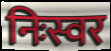
निःस्वर